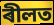
ৰীলত